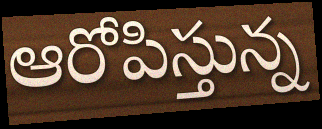
ఆరోపిస్తున్న